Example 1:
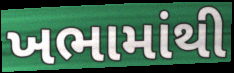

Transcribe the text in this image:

ખભામાંથી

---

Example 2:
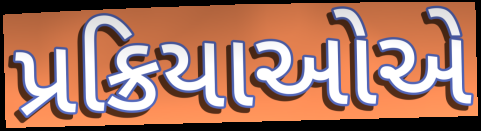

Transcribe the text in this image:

પ્રક્રિયાઓએ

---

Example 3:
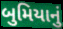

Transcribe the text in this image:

બુમિયાનું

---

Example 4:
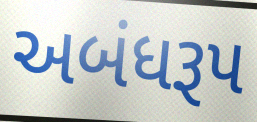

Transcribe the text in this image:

અબંધરૂપ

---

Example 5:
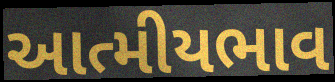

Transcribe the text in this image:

આત્મીયભાવ